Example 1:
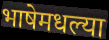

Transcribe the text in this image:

भाषेमधल्या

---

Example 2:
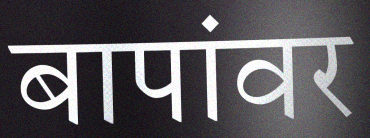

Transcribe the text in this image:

बापांवर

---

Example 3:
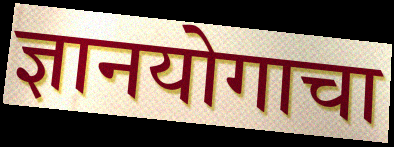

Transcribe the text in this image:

ज्ञानयोगाचा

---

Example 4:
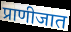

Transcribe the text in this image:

प्राणीजात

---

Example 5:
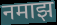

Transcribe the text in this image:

नमाझ